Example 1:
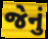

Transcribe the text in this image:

જેનું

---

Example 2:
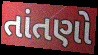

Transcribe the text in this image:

તાંતણો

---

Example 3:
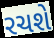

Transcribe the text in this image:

રચશે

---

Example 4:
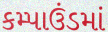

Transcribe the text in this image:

કમ્પાઉંડમાં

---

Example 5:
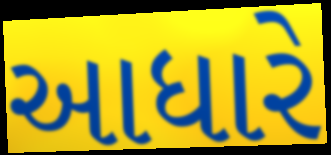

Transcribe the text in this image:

આધારે